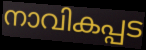
നാവികപ്പട